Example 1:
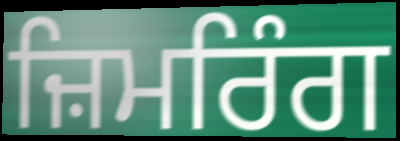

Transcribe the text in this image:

ਜ਼ਿਮਰਿੰਗ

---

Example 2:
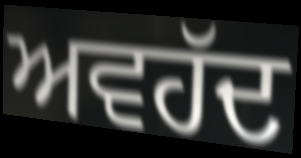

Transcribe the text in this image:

ਅਵਹੱਦ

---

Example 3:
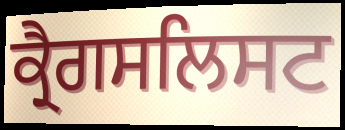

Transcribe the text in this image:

ਕ੍ਰੈਗਸਲਿਸਟ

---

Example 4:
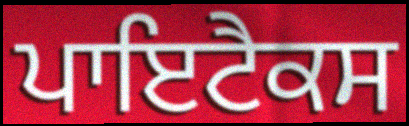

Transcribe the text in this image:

ਪਾਇਟੈਕਸ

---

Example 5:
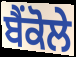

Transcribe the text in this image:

ਬੈਂਕੋਲੇ